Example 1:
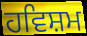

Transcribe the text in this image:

ਹਵਿਸ਼ਮ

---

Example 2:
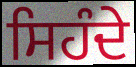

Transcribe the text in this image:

ਸਿਹੰਦੇ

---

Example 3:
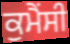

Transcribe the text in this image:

ਕੁਮੈਂਸੀ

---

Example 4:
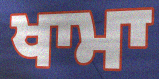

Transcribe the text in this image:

ਖਾਮਾ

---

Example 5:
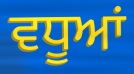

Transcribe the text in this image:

ਵਧੂਆਂ